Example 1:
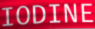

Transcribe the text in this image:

IODINE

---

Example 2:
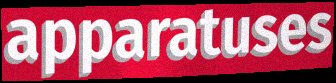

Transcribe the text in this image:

apparatuses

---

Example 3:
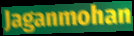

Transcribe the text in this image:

Jaganmohan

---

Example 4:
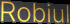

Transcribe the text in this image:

Robiul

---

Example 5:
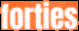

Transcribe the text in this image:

forties